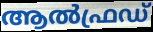
ആൽഫ്രഡ്